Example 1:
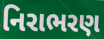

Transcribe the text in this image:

નિરાભરણ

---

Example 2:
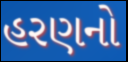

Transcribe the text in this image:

હરણનો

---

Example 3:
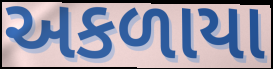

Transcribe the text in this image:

અકળાયા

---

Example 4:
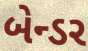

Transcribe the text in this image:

બેન્ડર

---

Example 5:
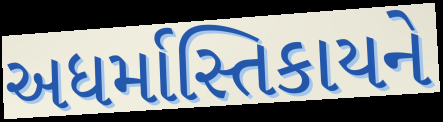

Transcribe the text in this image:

અધર્માસ્તિકાયને